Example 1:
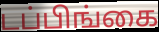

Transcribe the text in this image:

டப்பிங்கை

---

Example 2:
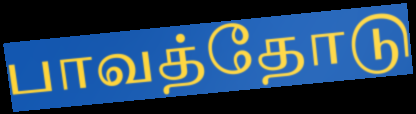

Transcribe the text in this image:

பாவத்தோடு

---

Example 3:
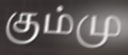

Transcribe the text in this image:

கும்மு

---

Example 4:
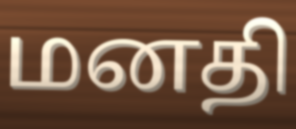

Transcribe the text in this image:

மனதி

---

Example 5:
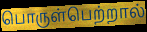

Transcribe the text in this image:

பொருள்பெற்றால்